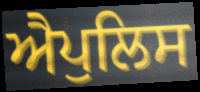
ਐਪੁਲਿਸ